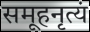
समूहनृत्यं